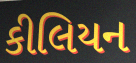
કીલિયન